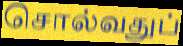
சொல்வதுப்